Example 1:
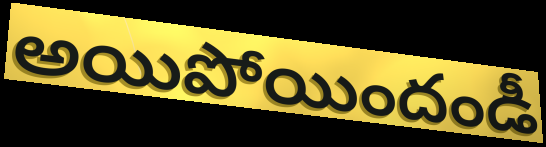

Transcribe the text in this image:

అయిపోయిందండీ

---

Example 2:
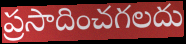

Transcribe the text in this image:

ప్రసాదించగలదు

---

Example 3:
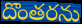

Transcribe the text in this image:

దొంతరను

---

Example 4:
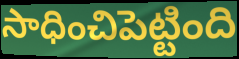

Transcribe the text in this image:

సాధించిపెట్టింది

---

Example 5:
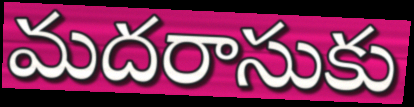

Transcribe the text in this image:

మదరాసుకు